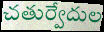
చతుర్వేదుల